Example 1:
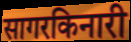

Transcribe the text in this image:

सागरकिनारी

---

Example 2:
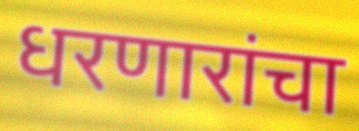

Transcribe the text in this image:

धरणारांचा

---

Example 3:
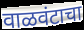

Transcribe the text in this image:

वाळवंटाचा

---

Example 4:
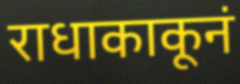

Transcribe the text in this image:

राधाकाकूनं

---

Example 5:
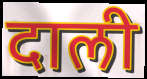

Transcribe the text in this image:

दाली